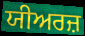
ਯੀਅਰਜ਼